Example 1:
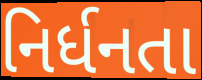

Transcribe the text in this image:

નિર્ધનતા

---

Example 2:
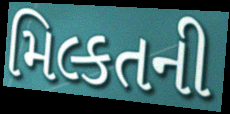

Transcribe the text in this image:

મિલ્કતની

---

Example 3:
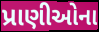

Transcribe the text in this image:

પ્રાણીઓના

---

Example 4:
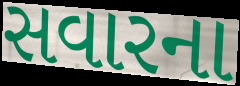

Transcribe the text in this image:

સવારના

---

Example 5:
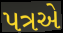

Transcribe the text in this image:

પત્રએ